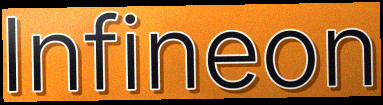
Infineon